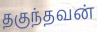
தகுந்தவன்